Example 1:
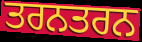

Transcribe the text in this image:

ਤਰਨਤਰਨ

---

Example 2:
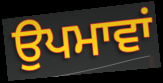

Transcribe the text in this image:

ਉਪਮਾਵਾਂ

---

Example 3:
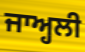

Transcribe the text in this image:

ਜਾਅ੍ਹਲੀ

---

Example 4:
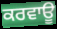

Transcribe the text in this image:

ਕਰਵਾਊ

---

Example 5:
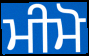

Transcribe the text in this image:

ਮੀਮੋ